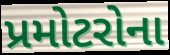
પ્રમોટરોના